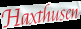
Haxthusen